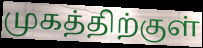
முகத்திற்குள்